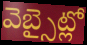
వెబ్సైట్లో